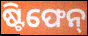
ଷ୍ଟିଫେନ୍